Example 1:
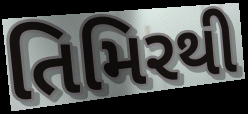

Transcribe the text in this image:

તિમિરથી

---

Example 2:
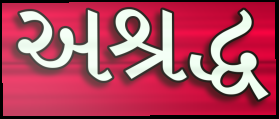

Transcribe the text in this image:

અશ્રદ્ધ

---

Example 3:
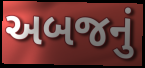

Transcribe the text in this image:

અબજનું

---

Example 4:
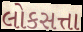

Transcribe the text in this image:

લોકસત્તા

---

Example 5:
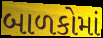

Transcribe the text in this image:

બાળકોમાં